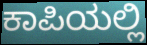
ಕಾಪಿಯಲ್ಲಿ